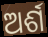
ଅର୍ଶ